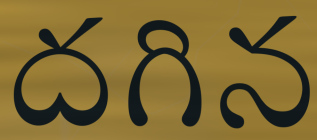
దగిన